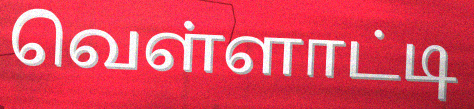
வெள்ளாட்டி